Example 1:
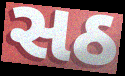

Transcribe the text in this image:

સઠ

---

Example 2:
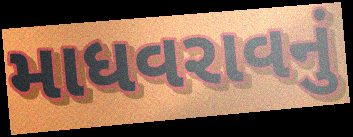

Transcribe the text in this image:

માધવરાવનું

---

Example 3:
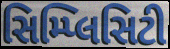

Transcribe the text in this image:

સિમ્પ્લિસિટી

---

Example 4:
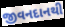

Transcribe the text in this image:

જીવનદાનથી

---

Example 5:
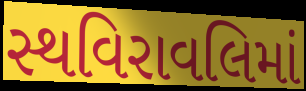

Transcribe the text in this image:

સ્થવિરાવલિમાં